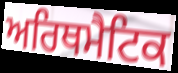
ਅਰਿਥਮੈਟਿਕ